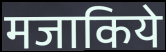
मजाकिये